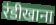
रंडीखाना